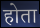
होता